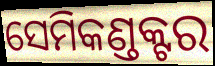
ସେମିକଣ୍ଡକ୍ଟର